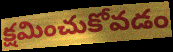
క్షమించుకోవడం